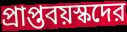
প্রাপ্তবয়স্কদের